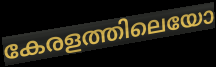
കേരളത്തിലെയോ